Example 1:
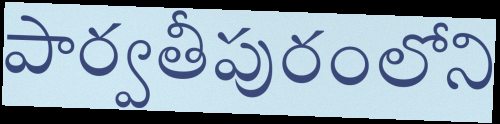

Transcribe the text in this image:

పార్వతీపురంలోని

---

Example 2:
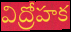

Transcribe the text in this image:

విద్రోహక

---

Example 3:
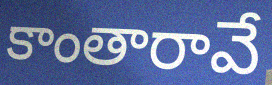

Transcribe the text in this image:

కాంతారావే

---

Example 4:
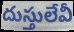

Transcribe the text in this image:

దుస్తులేవీ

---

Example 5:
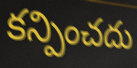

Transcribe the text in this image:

కన్పించదు